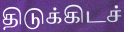
திடுக்கிடச்